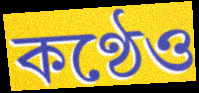
কণ্ঠেও